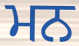
ਮਨ